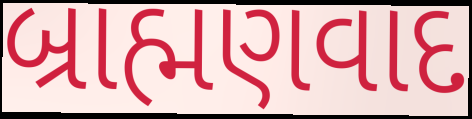
બ્રાહ્મણવાદ